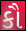
કૌ